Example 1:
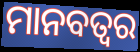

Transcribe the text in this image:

ମାନବତ୍ୱର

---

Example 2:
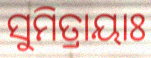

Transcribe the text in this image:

ସୁମିତ୍ରାୟାଃ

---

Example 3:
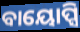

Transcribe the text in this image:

ବାୟୋପ୍ସି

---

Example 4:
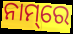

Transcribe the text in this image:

ନାମ୍‌ରେ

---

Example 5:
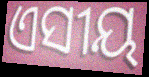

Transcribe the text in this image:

ଏସୀୟ